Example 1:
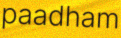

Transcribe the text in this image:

paadham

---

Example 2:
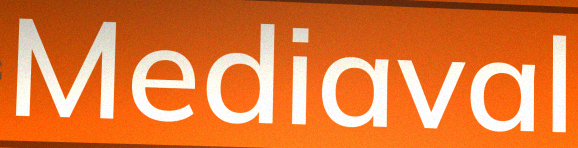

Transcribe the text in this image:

Mediaval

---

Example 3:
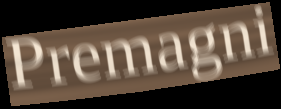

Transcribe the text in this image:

Premagni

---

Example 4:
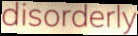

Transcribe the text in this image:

disorderly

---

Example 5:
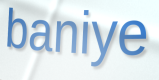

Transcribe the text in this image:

baniye